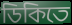
ডিকিতে